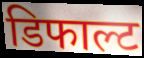
डिफाल्ट